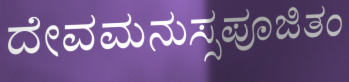
ದೇವಮನುಸ್ಸಪೂಜಿತಂ